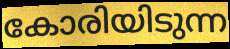
കോരിയിടുന്ന